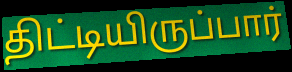
திட்டியிருப்பார்